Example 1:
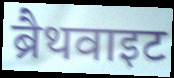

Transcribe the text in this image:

ब्रैथवाइट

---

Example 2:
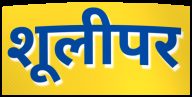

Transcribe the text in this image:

शूलीपर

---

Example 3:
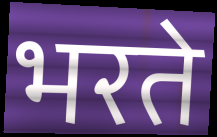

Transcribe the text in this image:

भरते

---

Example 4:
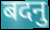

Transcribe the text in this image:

बदनु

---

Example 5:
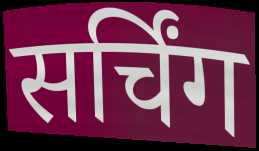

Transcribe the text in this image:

सर्चिंग